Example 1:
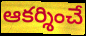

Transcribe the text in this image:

ఆకర్శించే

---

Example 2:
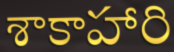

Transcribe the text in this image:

శాకాహారి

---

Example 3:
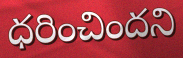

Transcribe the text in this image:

ధరించిందని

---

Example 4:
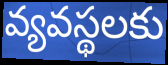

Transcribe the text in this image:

వ్యవస్థలకు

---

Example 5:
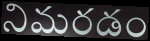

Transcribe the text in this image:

నిమరడం